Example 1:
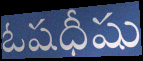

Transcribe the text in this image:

ఓషధీషు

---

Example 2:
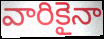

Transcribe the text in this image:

వారికైనా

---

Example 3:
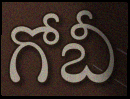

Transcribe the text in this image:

గోబీ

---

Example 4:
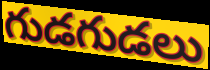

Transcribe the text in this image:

గుడగుడలు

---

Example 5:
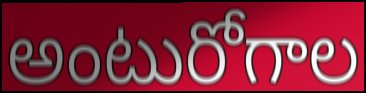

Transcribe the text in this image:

అంటురోగాల